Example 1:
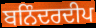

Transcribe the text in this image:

ਬਨਿੰਦਰਦੀਪ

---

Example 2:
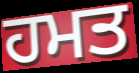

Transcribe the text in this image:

ਹਮਤ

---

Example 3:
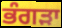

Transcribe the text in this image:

ਭੰਗੜਾ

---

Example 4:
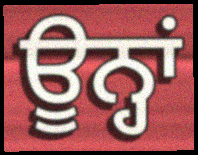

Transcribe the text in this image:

ਊਨ੍ਹਾਂ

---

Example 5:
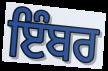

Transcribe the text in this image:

ਇੰਬਰ